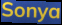
Sonya